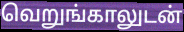
வெறுங்காலுடன்